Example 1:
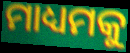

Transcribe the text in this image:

ମାଧ୍ୟମକୁ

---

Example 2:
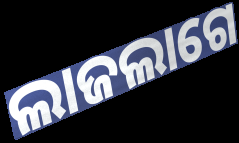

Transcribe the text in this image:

ଲାଜଲାଗେ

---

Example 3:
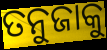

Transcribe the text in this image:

ତନୁଜାକୁ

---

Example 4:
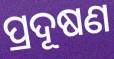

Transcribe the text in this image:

ପ୍ରଦୂଷଣ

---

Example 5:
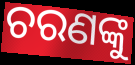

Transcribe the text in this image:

ଚରଣଙ୍କୁ